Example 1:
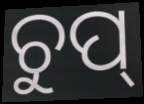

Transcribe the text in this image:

ଚୁପ୍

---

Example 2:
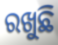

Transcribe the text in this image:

ରଖୁଛି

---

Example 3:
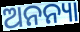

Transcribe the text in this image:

ଅନନ୍ୟା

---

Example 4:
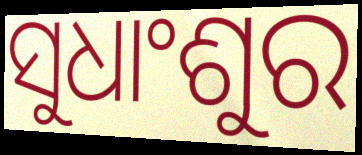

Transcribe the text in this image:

ସୁଧାଂଶୁର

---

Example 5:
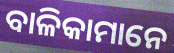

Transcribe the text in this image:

ବାଳିକାମାନେ